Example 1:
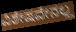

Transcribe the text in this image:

ವಿಶೇಷವೇನಲ್ಲ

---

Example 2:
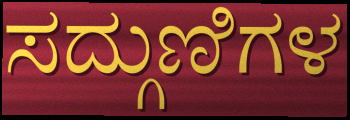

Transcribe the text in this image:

ಸದ್ಗುಣಿಗಳ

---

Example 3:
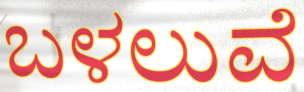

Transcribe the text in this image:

ಬಳಲುವೆ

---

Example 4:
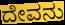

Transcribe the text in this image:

ದೇವನು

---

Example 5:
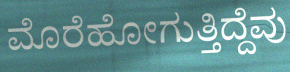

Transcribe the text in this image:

ಮೊರೆಹೋಗುತ್ತಿದ್ದೆವು